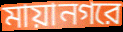
মায়ানগরে